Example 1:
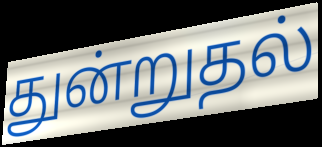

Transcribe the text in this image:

துன்றுதல்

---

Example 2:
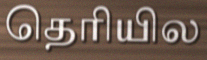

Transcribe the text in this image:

தெரியில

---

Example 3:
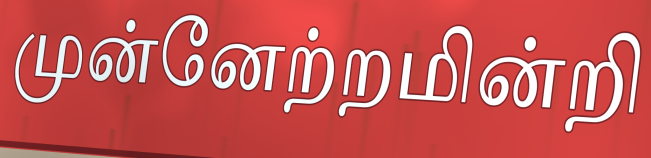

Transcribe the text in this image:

முன்னேற்றமின்றி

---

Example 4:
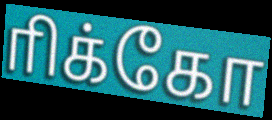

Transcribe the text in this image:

ரிக்கோ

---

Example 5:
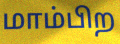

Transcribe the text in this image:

மாம்பிற